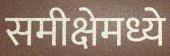
समीक्षेमध्ये